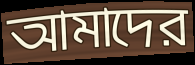
আমাদের